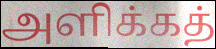
அளிக்கத்